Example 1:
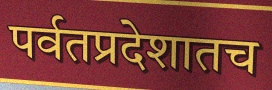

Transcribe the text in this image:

पर्वतप्रदेशातच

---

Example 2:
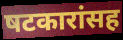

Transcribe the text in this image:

षटकारांसह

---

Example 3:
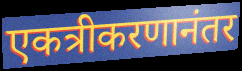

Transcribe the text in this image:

एकत्रीकरणानंतर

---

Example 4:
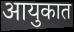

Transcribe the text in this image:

आयुकात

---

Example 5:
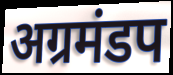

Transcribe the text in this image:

अग्रमंडप